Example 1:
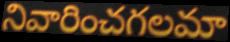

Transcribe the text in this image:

నివారించగలమా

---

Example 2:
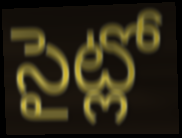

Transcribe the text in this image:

సైట్లో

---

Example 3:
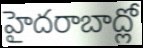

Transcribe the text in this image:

హైదరాబాద్లో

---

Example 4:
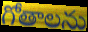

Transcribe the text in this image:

గోతాలను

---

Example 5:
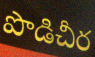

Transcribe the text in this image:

పొడిచీర